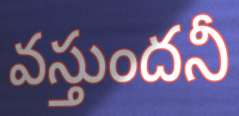
వస్తుందనీ